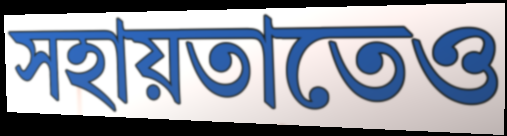
সহায়তাতেও